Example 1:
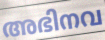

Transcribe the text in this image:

അഭിനവ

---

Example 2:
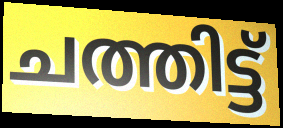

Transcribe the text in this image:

ചത്തിട്ട്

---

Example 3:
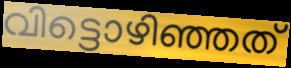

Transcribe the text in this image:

വിട്ടൊഴിഞ്ഞത്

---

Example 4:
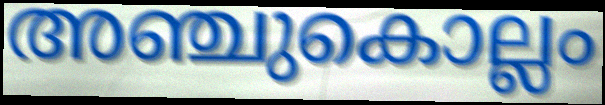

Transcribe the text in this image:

അഞ്ചുകൊല്ലം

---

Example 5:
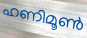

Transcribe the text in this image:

ഹണിമൂൺ